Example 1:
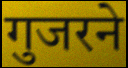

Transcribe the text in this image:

गुजरने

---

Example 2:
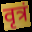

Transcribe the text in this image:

वृत्रं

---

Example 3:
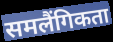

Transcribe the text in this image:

समलैंगिकता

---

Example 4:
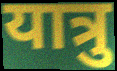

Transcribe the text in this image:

यात्रु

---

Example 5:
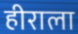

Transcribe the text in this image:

हीराला